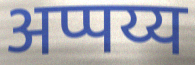
अप्पय्य